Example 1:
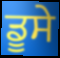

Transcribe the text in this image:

ਡੂਸੇ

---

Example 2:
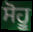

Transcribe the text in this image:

ਸੋਹੂ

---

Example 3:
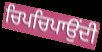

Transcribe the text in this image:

ਚਿਪਚਿਪਾਉਂਦੀ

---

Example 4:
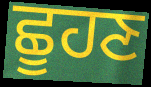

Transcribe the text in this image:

ਛੂਹਣ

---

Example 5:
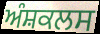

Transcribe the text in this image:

ਅੰਸ਼ਕਲਸ